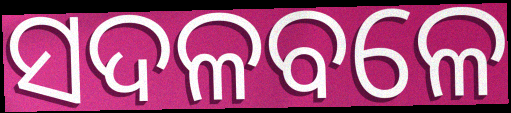
ସଦଳବଳେ